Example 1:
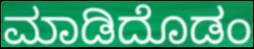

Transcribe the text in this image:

ಮಾಡಿದೊಡಂ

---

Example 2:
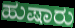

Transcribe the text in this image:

ಹುಷಾರು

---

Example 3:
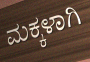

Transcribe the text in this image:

ಮಕ್ಕಳಾಗಿ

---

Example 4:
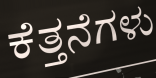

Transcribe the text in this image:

ಕೆತ್ತನೆಗಳು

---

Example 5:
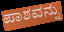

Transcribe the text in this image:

ಪಾಶವನ್ನು